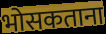
भोसकताना